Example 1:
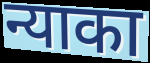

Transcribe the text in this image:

न्याका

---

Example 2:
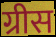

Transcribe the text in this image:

ग्रीस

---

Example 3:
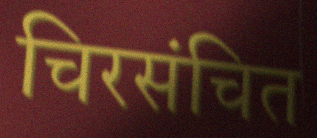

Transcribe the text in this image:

चिरसंचित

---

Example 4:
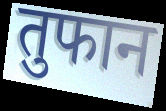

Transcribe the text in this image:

तुफान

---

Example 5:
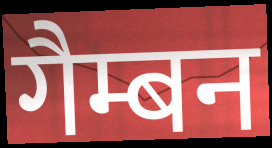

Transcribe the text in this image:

गैम्बन